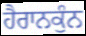
ਹੈਰਾਨਕੁੰਨ